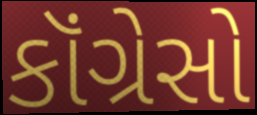
કૉંગ્રેસો